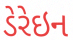
ડેરેઇન